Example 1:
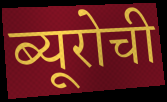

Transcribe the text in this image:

ब्यूरोची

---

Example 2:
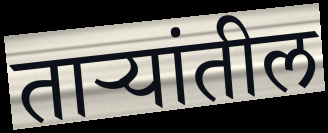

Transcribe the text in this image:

ताऱ्यांतील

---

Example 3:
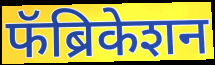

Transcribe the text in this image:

फॅब्रिकेशन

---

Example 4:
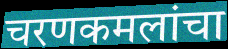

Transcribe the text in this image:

चरणकमलांचा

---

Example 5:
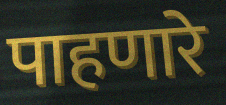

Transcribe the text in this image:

पाहणारे